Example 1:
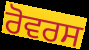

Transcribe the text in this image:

ਰੋਵਰਸ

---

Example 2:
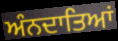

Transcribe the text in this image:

ਅੰਨਦਾਤਿਆਂ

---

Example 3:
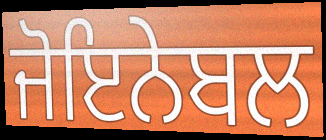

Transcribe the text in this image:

ਜੋਇਨੇਬਲ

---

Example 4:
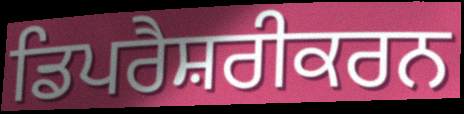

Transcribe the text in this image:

ਡਿਪਰੈਸ਼ਰੀਕਰਨ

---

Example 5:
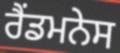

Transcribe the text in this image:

ਰੈਂਡਮਨੇਸ